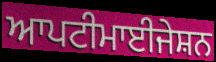
ਆਪਟੀਮਾਈਜੇਸ਼ਨ